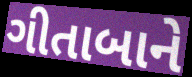
ગીતાબાને